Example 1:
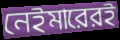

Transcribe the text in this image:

নেইমারেরই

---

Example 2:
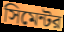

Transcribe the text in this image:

সিমেন্টর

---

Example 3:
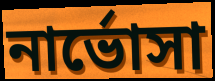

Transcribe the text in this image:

নার্ভোসা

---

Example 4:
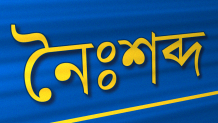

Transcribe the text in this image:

নৈঃশব্দ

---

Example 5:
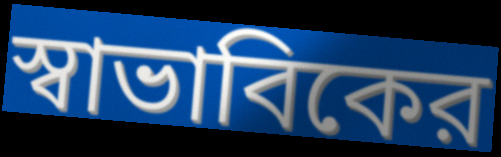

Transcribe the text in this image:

স্বাভাবিকের